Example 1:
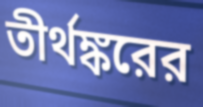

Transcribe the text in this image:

তীর্থঙ্করের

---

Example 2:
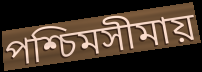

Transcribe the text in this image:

পশ্চিমসীমায়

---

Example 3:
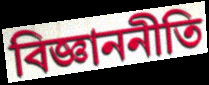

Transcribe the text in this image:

বিজ্ঞাননীতি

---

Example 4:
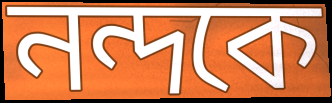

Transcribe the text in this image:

নন্দকে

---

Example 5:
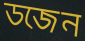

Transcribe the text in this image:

ডজেন